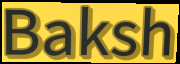
Baksh